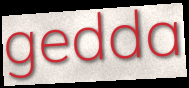
gedda